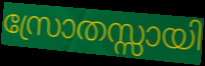
സ്രോതസ്സായി